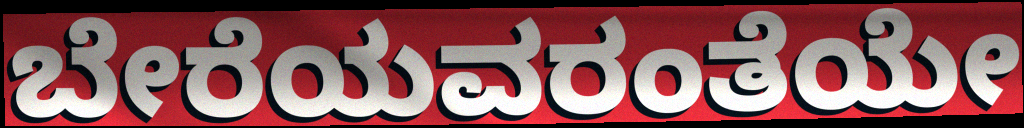
ಬೇರೆಯವರಂತೆಯೇ